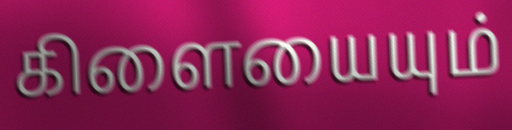
கிளையையும்